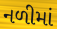
નળીમાં